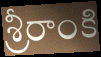
శ్రీరాంకి